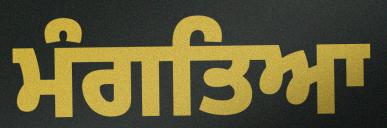
ਮੰਗਤਿਆ